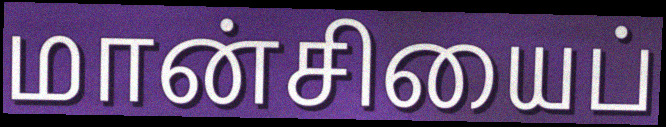
மான்சியைப்